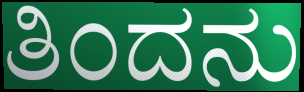
ತಿಂದನು